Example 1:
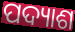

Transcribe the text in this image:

ପଦ୍ୟାଶ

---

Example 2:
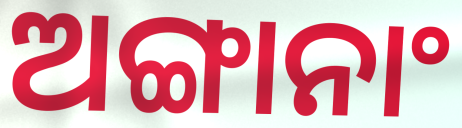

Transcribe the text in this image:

ଅଙ୍ଗାନାଂ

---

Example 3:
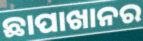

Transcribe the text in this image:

ଛାପାଖାନର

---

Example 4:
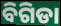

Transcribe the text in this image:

ବିଗିଡା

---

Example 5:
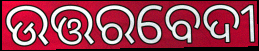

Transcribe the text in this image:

ଉତ୍ତରବେଦୀ